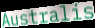
Australis